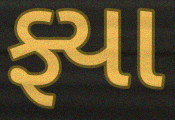
ફ્યા